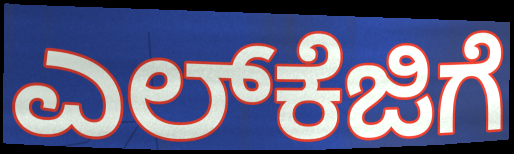
ಎಲ್‌ಕೆಜಿಗೆ